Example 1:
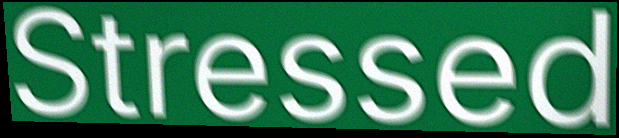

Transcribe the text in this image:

Stressed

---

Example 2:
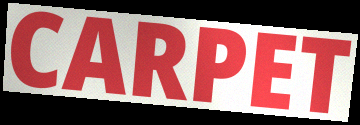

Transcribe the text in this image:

CARPET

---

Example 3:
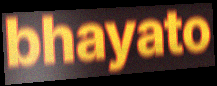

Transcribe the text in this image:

bhayato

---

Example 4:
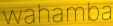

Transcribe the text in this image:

wahamba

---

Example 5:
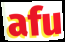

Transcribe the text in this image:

afu